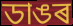
ডাঙৰ